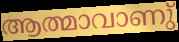
ആത്മാവാണു്